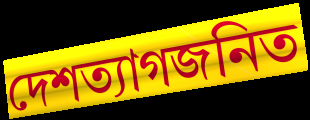
দেশত্যাগজনিত